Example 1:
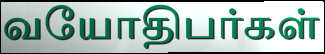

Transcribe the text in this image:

வயோதிபர்கள்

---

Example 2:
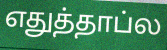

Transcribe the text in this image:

எதுத்தாப்ல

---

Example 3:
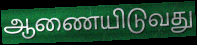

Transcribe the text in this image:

ஆணையிடுவது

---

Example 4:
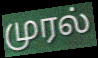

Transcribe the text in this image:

முரல்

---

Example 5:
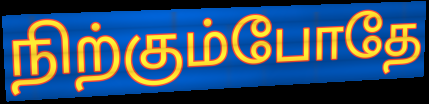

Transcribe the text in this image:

நிற்கும்போதே